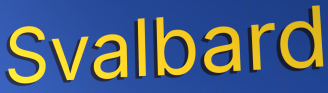
Svalbard